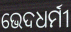
ଭେଦଧର୍ମୀ